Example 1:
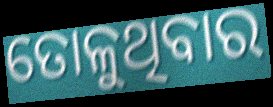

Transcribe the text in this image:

ତୋଳୁଥିବାର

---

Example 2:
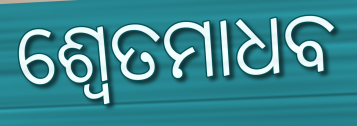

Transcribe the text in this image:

ଶ୍ୱେତମାଧବ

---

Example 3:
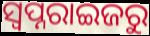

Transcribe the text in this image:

ସ୍ୱପ୍ନରାଇଜରୁ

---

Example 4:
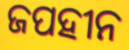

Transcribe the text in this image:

ଜପହୀନ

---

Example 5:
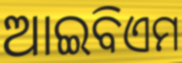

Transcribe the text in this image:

ଆଇବିଏମ